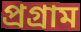
প্ৰগ্ৰাম